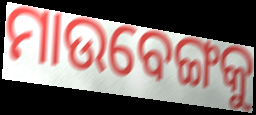
ମାଉବେଙ୍ଗକୁ